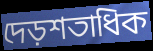
দেড়শতাধিক